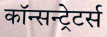
कॉन्सन्ट्रेटर्स